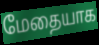
மேதையாக